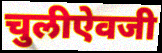
चुलीऐवजी